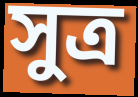
সুত্র